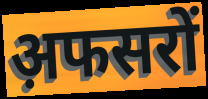
अ़फसरों